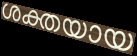
ശക്തയായ